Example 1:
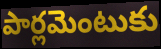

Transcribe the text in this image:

పార్లమెంటుకు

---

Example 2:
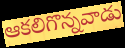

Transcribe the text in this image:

ఆకలిగొన్నవాడు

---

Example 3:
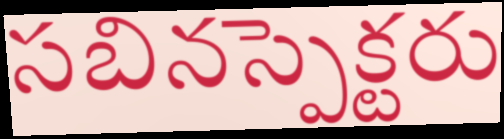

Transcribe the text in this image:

సబినస్పెక్టరు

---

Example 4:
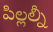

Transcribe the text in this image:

పిల్లల్నీ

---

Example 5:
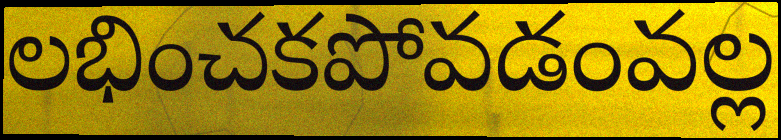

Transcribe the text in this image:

లభించకపోవడంవల్ల